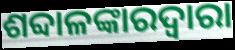
ଶବ୍ଦାଳଙ୍କାରଦ୍ୱାରା